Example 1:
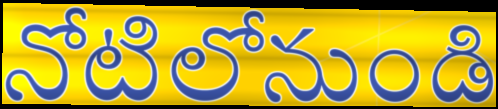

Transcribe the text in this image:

నోటిలోనుండి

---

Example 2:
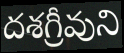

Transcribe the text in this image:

దశగ్రీవుని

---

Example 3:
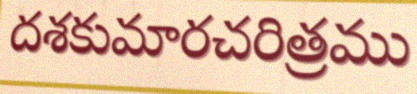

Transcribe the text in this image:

దశకుమారచరిత్రము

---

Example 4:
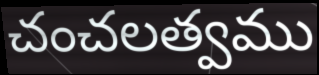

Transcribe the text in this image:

చంచలత్వము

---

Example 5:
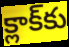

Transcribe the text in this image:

క్లాక్‌కు